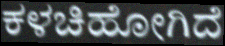
ಕಳಚಿಹೋಗಿದೆ